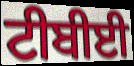
ਟੀਬੀਈ